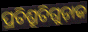
ପ୍ରତିଶ୍ରୂତିଗୁଡ଼ାକ